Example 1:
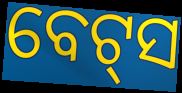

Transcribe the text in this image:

ବେଟ୍‍ସ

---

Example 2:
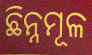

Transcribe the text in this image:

ଛିନ୍ନମୂଳ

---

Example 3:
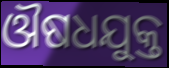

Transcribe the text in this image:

ଔଷଧଯୁକ୍ତ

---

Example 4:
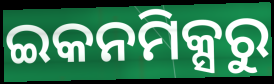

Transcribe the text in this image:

ଇକନମିକ୍ସରୁ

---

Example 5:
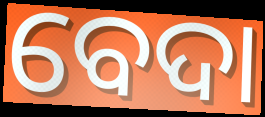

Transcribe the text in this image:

ବେଦା